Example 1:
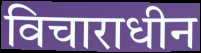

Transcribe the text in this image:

विचाराधीन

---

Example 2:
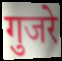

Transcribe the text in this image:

गुजरे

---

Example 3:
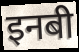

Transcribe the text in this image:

इनबी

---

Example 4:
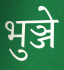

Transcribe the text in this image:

भुञ्जे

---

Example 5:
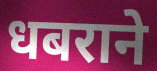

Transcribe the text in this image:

धबराने